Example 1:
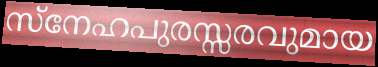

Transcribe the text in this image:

സ്നേഹപുരസ്സരവുമായ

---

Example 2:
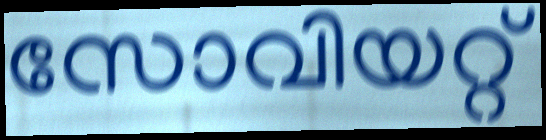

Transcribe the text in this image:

സോവിയറ്റ്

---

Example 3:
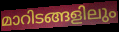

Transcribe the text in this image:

മാറിടങ്ങളിലും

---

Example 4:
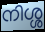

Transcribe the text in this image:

നിശ്ശ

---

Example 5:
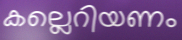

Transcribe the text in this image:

കല്ലെറിയണം